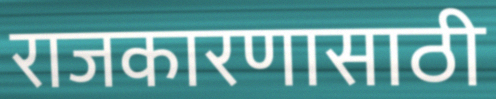
राजकारणासाठी